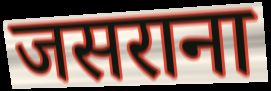
जसराना